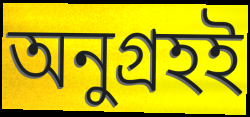
অনুগ্রহই